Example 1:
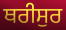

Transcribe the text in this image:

ਥਰੀਸੁਰ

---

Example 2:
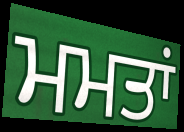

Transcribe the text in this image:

ਮਮਤਾਂ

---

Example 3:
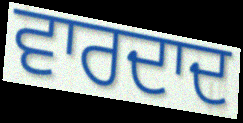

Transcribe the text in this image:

ਵਾਰਦਾਦ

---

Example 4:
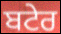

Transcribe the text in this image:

ਬਟੇਰ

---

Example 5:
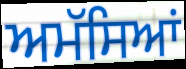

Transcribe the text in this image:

ਅਮੱਸਿਆਂ